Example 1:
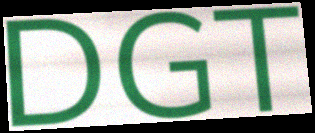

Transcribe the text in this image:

DGT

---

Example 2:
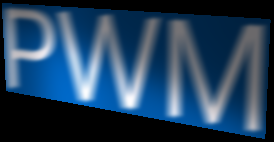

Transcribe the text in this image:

PWM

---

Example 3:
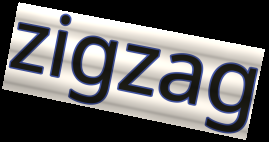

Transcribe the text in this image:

zigzag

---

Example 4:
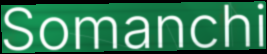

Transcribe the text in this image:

Somanchi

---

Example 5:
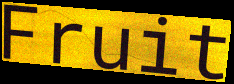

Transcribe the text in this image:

Fruit